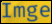
Imge